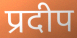
प्रदीप